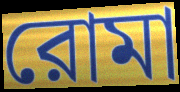
রোমা